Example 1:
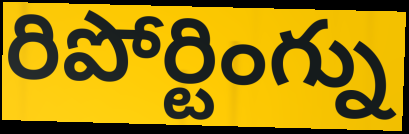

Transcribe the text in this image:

రిపోర్టింగ్ను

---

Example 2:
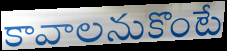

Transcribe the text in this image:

కావాలనుకొంటే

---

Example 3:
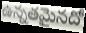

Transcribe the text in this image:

ఉన్నతమైనదో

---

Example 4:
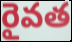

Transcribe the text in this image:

రైవత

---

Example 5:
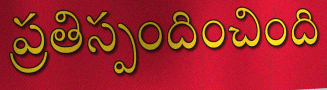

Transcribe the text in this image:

ప్రతిస్పందించింది